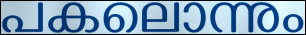
പകലൊന്നും